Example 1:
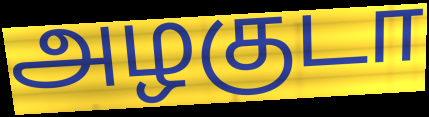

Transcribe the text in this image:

அழகுடா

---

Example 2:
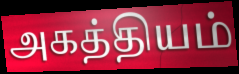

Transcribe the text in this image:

அகத்தியம்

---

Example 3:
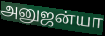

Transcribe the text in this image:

அனுஜன்யா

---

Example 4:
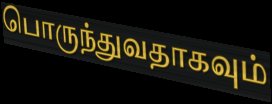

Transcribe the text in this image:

பொருந்துவதாகவும்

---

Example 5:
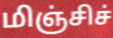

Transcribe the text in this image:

மிஞ்சிச்